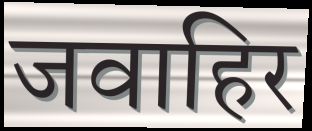
जवाहिर